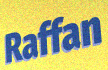
Raffan